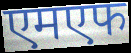
एमएफ